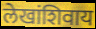
लेखांशिवाय